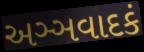
અઞ્ઞવાદકં